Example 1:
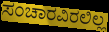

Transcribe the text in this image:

ಸಂಚಾರವಿರಲಿಲ್ಲ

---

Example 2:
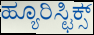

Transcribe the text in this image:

ಹ್ಯೂರಿಸ್ಟಿಕ್ಸ್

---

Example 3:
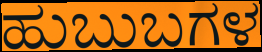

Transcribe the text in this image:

ಹುಬುಬಗಳ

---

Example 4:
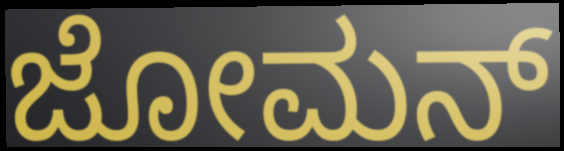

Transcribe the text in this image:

ಜೋಮನ್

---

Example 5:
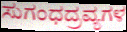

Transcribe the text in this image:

ಸುಗಂಧದ್ರವ್ಯಗಳ